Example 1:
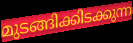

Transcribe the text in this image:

മുടങ്ങിക്കിടക്കുന്ന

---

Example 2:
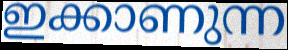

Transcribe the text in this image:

ഇക്കാണുന്ന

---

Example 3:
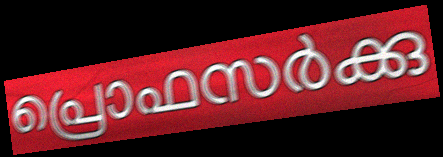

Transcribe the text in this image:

പ്രൊഫസർക്കു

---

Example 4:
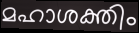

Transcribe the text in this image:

മഹാശക്തിം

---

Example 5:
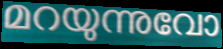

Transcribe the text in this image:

മറയുന്നുവോ